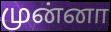
முன்னா